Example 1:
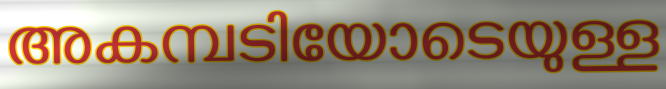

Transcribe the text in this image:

അകമ്പടിയോടെയുള്ള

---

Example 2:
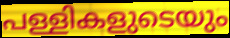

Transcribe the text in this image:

പള്ളികളുടെയും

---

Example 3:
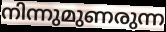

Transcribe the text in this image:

നിന്നുമുണരുന്ന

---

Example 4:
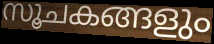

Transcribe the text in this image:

സൂചകങ്ങളും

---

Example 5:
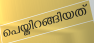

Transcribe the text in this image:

പെയ്തിറങ്ങിയത്